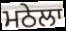
ਮਠੇਲਾ